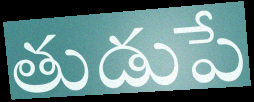
తుడుపే